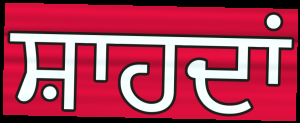
ਸ਼ਾਹਦਾਂ